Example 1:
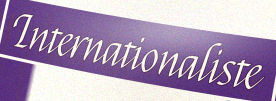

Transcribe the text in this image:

Internationaliste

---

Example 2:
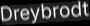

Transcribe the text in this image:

Dreybrodt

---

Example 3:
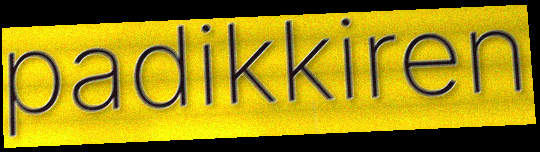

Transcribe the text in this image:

padikkiren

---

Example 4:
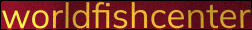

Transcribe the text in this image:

worldfishcenter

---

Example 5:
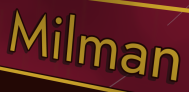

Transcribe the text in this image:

Milman